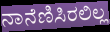
ನಾನೆಣಿಸಿರಲಿಲ್ಲ